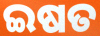
ଇଷତ